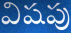
విషపు